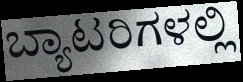
ಬ್ಯಾಟರಿಗಳಲ್ಲಿ